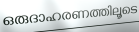
ഒരുദാഹരണത്തിലൂടെ